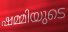
ഷമ്മിയുടെ